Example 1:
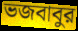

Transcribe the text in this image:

ভজবাবুর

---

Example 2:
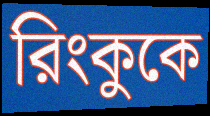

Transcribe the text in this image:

রিংকুকে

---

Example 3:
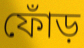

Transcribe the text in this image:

ফোঁড়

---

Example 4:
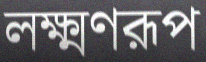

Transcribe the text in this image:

লক্ষ্মণরূপ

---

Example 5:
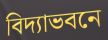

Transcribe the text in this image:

বিদ্যাভবনে